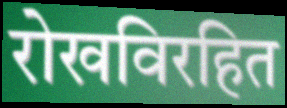
रोखविरहित